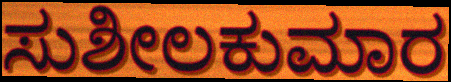
ಸುಶೀಲಕುಮಾರ